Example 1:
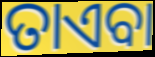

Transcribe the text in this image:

ତାଏବା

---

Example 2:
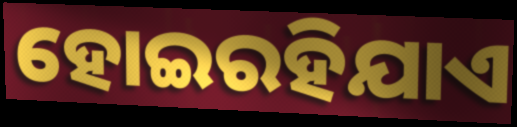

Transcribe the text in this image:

ହୋଇରହିଯାଏ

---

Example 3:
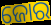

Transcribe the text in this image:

ଜୋର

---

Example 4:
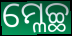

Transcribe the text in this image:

ମ୍ଳେଚ୍ଛ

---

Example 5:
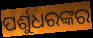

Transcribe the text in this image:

ପର୍ଶୁଧରଙ୍କର